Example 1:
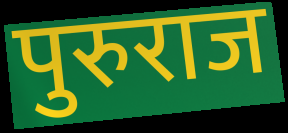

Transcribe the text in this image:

पुरुराज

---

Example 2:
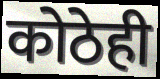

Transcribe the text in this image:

कोठेही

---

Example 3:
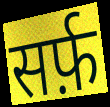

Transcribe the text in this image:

सर्फ़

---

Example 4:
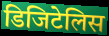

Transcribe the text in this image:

डिजिटेलिस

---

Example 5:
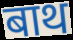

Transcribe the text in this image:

बाथ